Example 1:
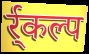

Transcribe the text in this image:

र्र्कल्प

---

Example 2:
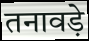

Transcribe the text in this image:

तनावड़े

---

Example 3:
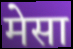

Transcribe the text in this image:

मेसा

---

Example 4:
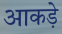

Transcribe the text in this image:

आकड़े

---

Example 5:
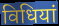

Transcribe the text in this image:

विधियां